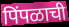
पिंपळाची